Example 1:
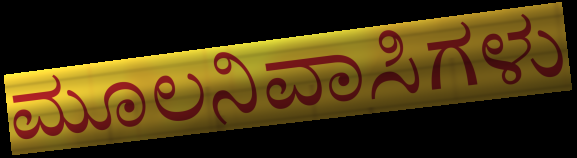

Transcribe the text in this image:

ಮೂಲನಿವಾಸಿಗಳು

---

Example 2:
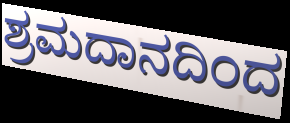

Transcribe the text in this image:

ಶ್ರಮದಾನದಿಂದ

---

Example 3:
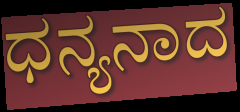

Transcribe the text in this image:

ಧನ್ಯನಾದ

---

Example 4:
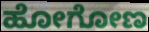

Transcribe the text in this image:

ಹೋಗೋಣ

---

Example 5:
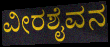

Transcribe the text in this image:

ವೀರಶೈವನ